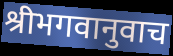
श्रीभगवानुवाच